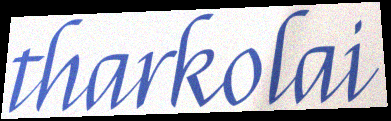
tharkolai